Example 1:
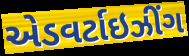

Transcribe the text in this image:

એડવર્ટાઇઝીંગ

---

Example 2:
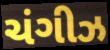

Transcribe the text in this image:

ચંગીઝ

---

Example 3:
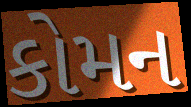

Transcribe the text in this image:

કોમન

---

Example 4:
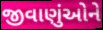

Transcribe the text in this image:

જીવાણુંઓને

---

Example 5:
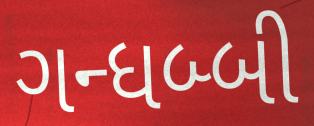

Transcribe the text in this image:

ગન્ધબ્બી